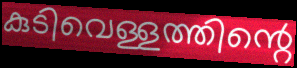
കുടിവെള്ളത്തിന്റെ